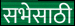
सभेसाठी